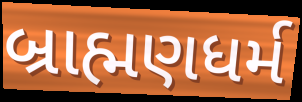
બ્રાહ્મણધર્મ